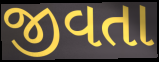
જીવતા